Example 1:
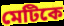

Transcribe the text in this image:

মেটিকে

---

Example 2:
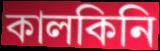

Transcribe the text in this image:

কালকিনি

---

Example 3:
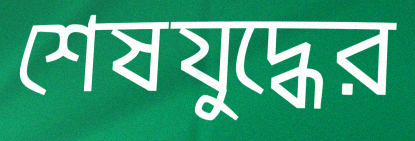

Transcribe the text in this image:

শেষযুদ্ধের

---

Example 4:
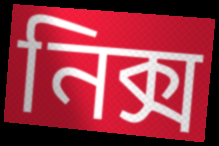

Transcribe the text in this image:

নিক্স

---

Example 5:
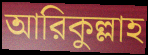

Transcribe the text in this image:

আরিকুল্লাহ